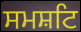
ਸਮਸ਼ਟਿ